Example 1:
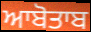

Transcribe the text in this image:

ਆਬੋਤਾਬ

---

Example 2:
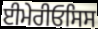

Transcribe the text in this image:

ਈਮੇਰੀਓਸਿਸ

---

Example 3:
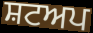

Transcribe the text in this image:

ਸ਼ਟਅਪ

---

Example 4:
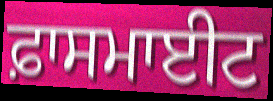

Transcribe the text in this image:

ਫ਼ਾਸਮਾਈਟ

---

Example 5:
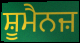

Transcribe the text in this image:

ਸ਼ੂਮੈਨਜ਼